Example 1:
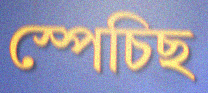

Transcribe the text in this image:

স্পেচিছ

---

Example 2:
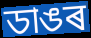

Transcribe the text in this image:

ডাঙৰ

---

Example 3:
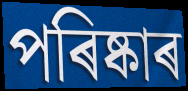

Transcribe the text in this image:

পৰিষ্কাৰ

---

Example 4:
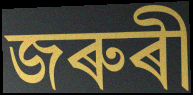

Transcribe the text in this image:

জৰুৰী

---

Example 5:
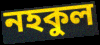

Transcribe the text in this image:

নহকুল